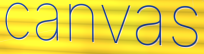
canvas